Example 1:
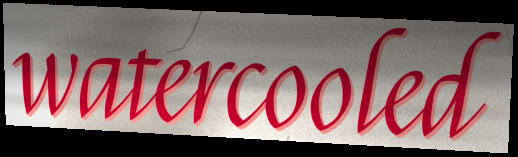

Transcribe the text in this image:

watercooled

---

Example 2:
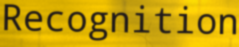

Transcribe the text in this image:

Recognition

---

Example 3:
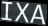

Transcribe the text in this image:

IXA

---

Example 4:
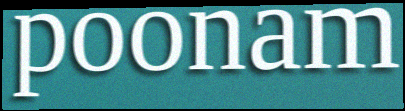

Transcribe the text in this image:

poonam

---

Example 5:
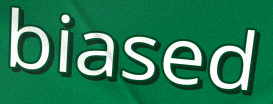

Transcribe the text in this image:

biased